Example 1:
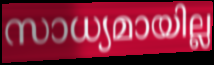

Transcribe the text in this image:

സാധ്യമായില്ല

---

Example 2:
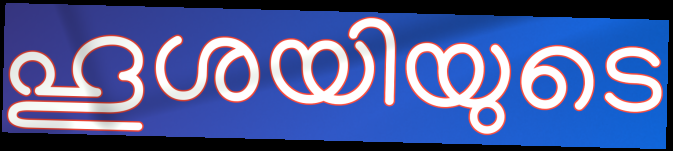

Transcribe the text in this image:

ഹൂശയിയുടെ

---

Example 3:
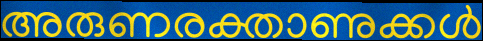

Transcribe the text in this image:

അരുണരക്താണുക്കൾ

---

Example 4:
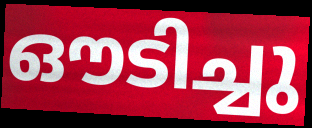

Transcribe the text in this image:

ഔടിച്ചു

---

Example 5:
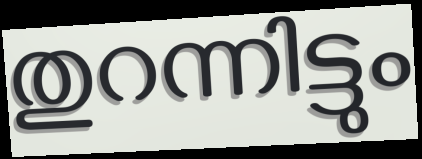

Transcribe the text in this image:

തുറന്നിട്ടും